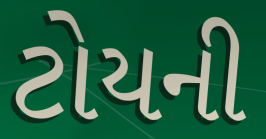
ટોયની